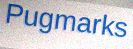
Pugmarks